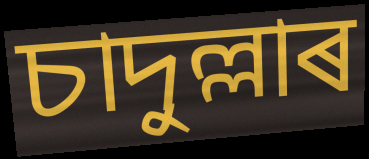
চাদুল্লাৰ